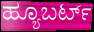
ಹ್ಯೂಬರ್ಟ್